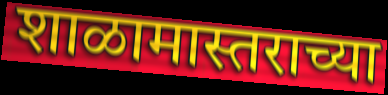
शाळामास्तराच्या